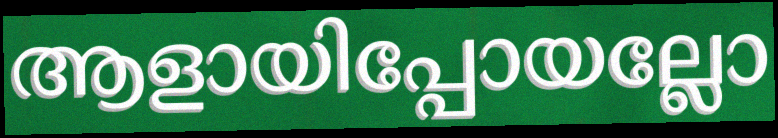
ആളായിപ്പോയല്ലോ